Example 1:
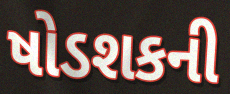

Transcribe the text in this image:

ષોડશકની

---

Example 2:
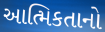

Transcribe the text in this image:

આત્મિકતાનો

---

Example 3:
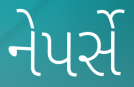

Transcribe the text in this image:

નેપર્સે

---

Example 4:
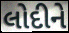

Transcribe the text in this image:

લોદીને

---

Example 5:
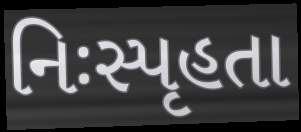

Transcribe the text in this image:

નિઃસ્પૃહતા